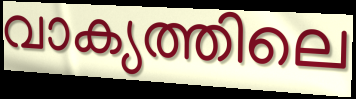
വാക്യത്തിലെ